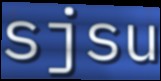
sjsu